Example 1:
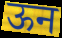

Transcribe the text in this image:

ऊन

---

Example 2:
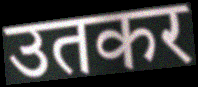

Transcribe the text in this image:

उतकर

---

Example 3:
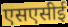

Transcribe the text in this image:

एसएसीई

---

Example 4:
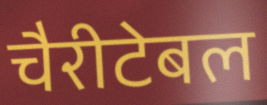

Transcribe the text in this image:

चैरीटेबल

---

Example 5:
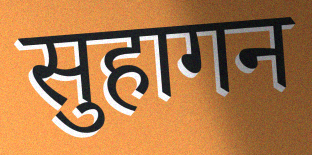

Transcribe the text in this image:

सुहागन